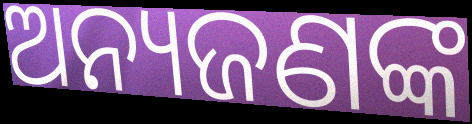
ଅନ୍ୟଜଣଙ୍କ